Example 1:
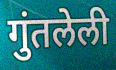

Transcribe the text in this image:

गुंतलेली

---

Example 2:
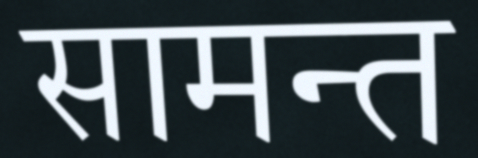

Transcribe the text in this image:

सामन्त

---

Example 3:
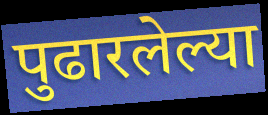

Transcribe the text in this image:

पुढारलेल्या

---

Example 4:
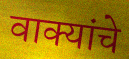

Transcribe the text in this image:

वाक्यांचे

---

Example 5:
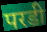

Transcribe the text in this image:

परडी